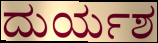
ದುರ್ಯಶ